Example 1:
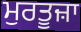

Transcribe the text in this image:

ਮੁਰਤੂਜ਼ਾ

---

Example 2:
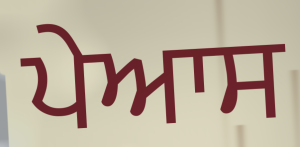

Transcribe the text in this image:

ਪੇਆਸ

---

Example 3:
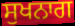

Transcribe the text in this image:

ਸੁਖਨਾਗ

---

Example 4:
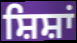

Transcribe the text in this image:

ਸ਼ਿਸ਼ਾਂ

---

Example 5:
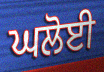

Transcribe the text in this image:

ਘਲੋਈ